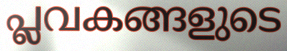
പ്ലവകങ്ങളുടെ